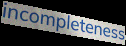
incompleteness